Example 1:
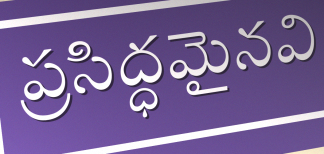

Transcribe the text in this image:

ప్రసిద్ధమైనవి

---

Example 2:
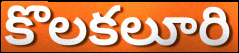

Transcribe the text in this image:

కొలకలూరి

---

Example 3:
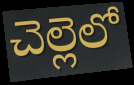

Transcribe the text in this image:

చెల్లెలో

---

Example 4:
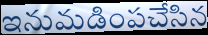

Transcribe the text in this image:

ఇనుమడింపచేసిన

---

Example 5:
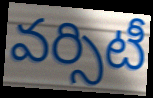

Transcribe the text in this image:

వర్సిటీ